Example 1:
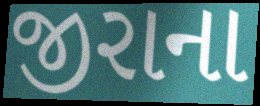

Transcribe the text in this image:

જીરાના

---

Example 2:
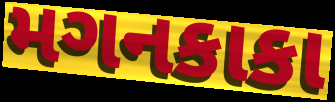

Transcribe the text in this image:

મગનકાકા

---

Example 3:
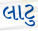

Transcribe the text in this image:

લાટુ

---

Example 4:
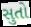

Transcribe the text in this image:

સુતો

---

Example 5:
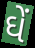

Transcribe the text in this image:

ઘેં